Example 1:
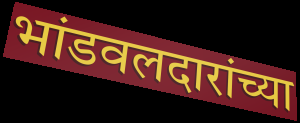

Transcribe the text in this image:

भांडवलदारांच्या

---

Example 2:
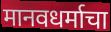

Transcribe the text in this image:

मानवधर्माचा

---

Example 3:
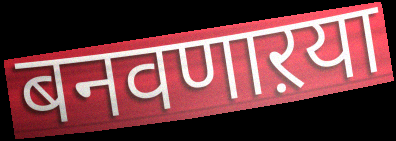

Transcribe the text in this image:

बनवणाऱया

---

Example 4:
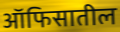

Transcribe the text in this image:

ऑफिसातील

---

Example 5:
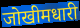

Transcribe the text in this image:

जोखीमधारी